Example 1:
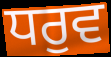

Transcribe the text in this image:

ਧਰੁਵ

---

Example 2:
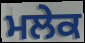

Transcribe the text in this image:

ਮਲੇਕ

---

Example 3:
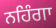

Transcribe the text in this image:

ਨਹਿੰਗਾ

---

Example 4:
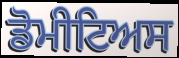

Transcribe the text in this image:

ਡੋਮੀਟਿਅਸ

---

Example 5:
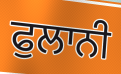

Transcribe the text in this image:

ਫੁਲਾਨੀ